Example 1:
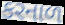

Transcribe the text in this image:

કરનાળ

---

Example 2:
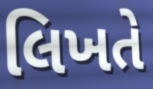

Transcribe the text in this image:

લિખતે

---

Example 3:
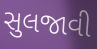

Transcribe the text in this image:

સુલજાવી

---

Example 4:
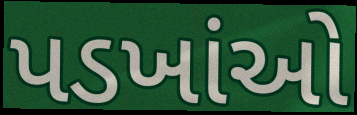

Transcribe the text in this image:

પડખાંઓ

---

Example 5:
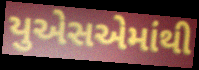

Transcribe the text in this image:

યુએસએમાંથી